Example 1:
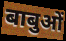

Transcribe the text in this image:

बाबुओं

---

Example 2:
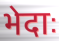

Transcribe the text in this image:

भेदाः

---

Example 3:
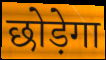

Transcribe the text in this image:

छोड़ेगा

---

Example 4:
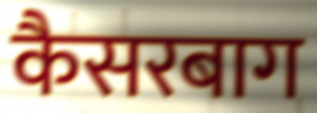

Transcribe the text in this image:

कैसरबाग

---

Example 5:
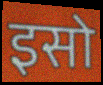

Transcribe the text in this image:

इसो